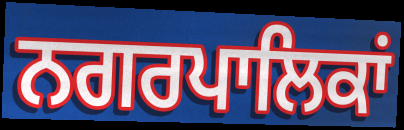
ਨਗਰਪਾਲਿਕਾਂ